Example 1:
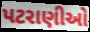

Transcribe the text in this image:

પટરાણીઓ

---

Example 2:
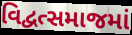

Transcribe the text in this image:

વિદ્વત્સમાજમાં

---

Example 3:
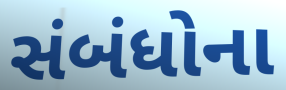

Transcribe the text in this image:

સંબંધોના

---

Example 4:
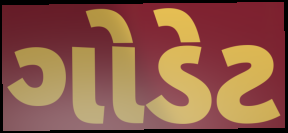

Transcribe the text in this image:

ગોડેટ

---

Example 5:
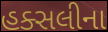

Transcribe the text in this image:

હક્સલીના